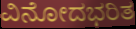
ವಿನೋದಭರಿತ